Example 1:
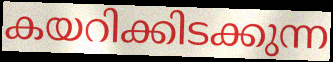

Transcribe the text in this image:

കയറിക്കിടക്കുന്ന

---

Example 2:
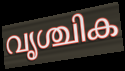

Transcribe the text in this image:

വൃശ്ചിക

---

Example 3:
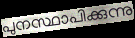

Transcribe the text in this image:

പുനസ്ഥാപിക്കുന്നു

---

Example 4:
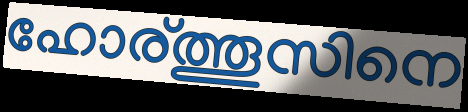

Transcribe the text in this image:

ഹോര്ത്തൂസിനെ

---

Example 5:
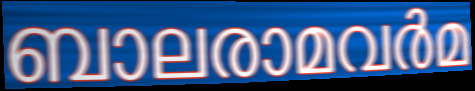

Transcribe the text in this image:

ബാലരാമവർമ